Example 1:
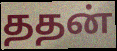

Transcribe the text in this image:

ததன்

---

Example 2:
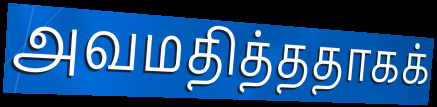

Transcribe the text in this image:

அவமதித்ததாகக்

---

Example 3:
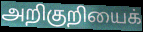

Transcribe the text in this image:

அறிகுறியைக்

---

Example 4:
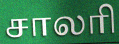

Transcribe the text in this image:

சாலரி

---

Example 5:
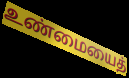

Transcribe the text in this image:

உண்மையைத்